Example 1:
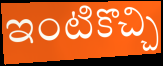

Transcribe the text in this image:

ఇంటికొచ్చి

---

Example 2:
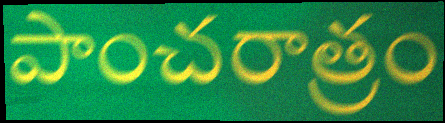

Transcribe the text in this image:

పాంచరాత్రం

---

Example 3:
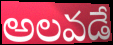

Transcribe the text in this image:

అలవడే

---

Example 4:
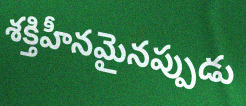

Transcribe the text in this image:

శక్తిహీనమైనప్పుడు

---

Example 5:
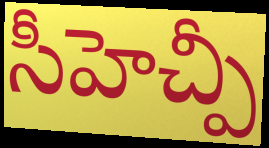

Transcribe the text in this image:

సీహెచ్పీ